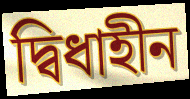
দ্বিধাহীন